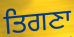
ਤਿਗਣਾ